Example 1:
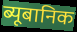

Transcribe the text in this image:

ब्यूबानिक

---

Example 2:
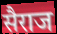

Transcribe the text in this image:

सैराज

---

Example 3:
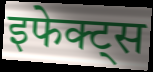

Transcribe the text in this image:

इफेक्ट्स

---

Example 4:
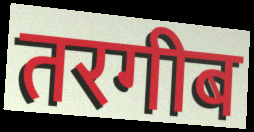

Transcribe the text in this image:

तरगीब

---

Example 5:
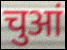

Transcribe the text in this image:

चुआं